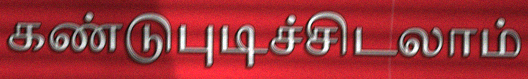
கண்டுபுடிச்சிடலாம்